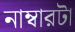
নাম্বারটা